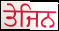
ਤੇਜਿਨ